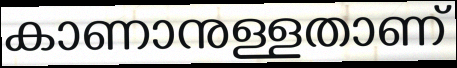
കാണാനുള്ളതാണ്